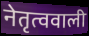
नेतृत्ववाली